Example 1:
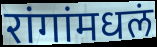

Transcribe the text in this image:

रांगांमधलं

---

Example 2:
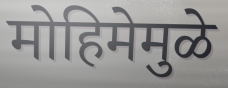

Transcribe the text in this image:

मोहिमेमुळे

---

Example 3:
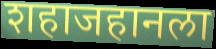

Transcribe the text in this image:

शहाजहानला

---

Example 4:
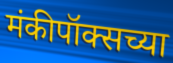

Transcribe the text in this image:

मंकीपॉक्सच्या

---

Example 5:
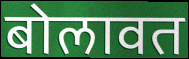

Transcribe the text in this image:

बोलावत